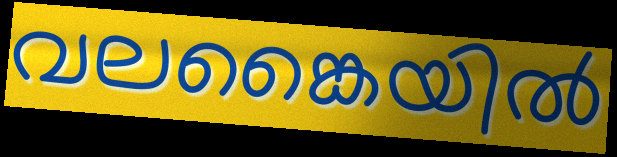
വലങ്കൈയിൽ